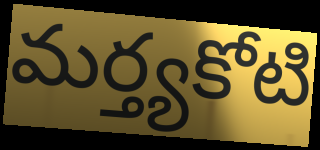
మర్త్యకోటి